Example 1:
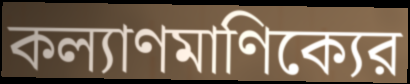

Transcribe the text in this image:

কল্যাণমাণিক্যের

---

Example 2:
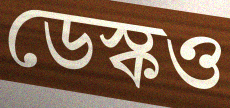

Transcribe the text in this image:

ডেস্কও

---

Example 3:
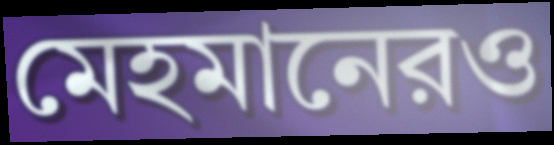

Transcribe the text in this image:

মেহমানেরও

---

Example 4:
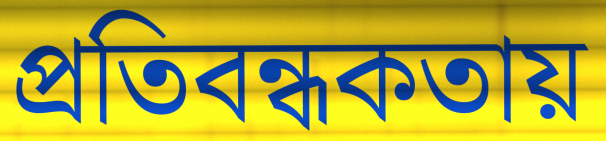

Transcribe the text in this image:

প্রতিবন্ধকতায়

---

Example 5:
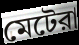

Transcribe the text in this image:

মেটেরা